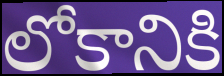
లోకానికి